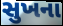
સુખના